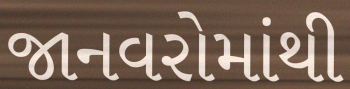
જાનવરોમાંથી